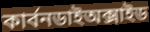
কার্বনডাইঅক্সাইড